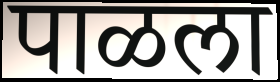
पाळला